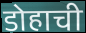
डोहाची